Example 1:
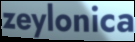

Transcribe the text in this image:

zeylonica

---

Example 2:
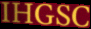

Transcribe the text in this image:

IHGSC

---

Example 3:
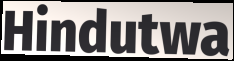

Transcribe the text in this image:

Hindutwa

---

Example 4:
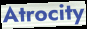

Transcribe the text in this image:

Atrocity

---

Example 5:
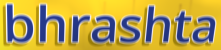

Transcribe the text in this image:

bhrashta